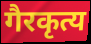
गैरकृत्य